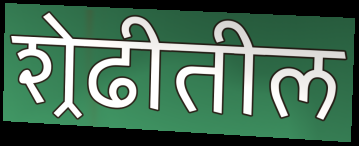
श्रेढीतील